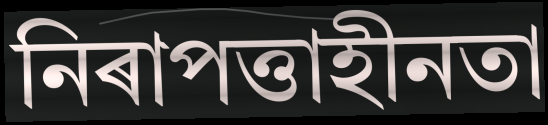
নিৰাপত্তাহীনতা